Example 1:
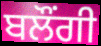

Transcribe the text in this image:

ਬਲੌਂਗੀ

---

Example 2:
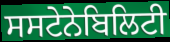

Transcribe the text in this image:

ਸਸਟੇਨੇਬਿਲਿਟੀ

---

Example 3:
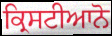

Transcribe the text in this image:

ਕ੍ਰਿਸਟੀਆਨੋ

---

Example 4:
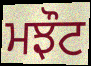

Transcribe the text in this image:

ਮਝੌਟ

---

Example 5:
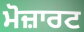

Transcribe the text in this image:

ਮੋਜ਼ਾਰਟ